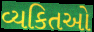
વ્યકિતઓ